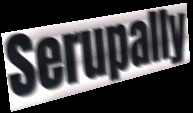
Serupally